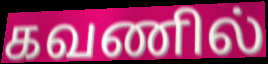
கவணில்